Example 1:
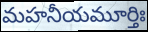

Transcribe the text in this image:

మహనీయమూర్తిః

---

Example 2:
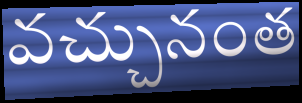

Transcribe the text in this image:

వచ్చునంత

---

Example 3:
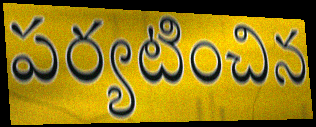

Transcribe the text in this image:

పర్యటించిన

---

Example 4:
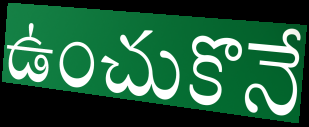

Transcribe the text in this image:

ఉంచుకొనే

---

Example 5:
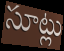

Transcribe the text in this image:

సూట్లు